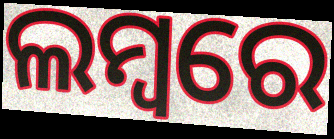
ଲମ୍ବରେ